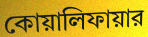
কোয়ালিফায়ার